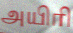
அயிரி